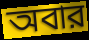
অবার